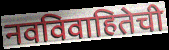
नवविवाहितेची